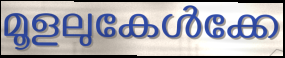
മൂളലുകേൾക്കേ